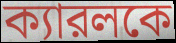
ক্যারলকে